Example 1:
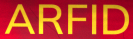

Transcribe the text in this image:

ARFID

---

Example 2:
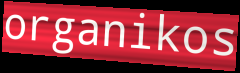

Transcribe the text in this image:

organikos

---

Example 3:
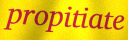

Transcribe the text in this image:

propitiate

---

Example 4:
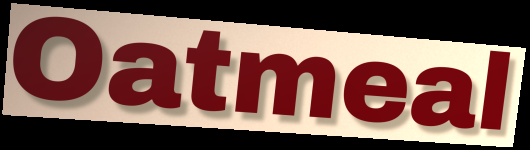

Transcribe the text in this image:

Oatmeal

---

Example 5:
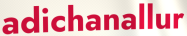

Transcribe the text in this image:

adichanallur